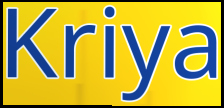
Kriya